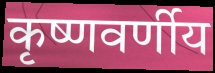
कृष्णवर्णीय